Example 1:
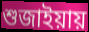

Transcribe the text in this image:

শুজাইয়ায়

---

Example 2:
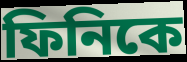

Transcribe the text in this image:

ফিনিকে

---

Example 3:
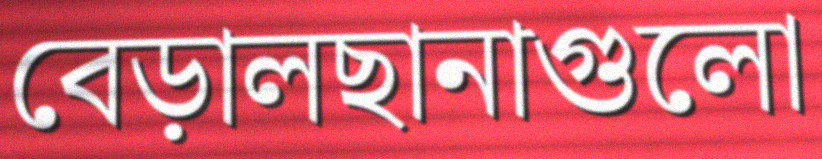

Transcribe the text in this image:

বেড়ালছানাগুলো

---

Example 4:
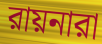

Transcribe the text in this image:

রায়নারা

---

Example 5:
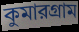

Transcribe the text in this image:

কুমারগ্রাম